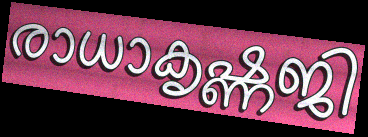
രാധാകൃഷ്ണജി